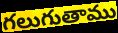
గలుగుతాము